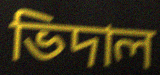
ভিদাল